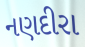
નણદીરા